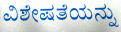
ವಿಶೇಷತೆಯನ್ನು